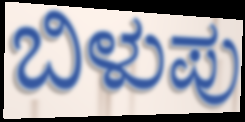
ಬಿಳುಪು